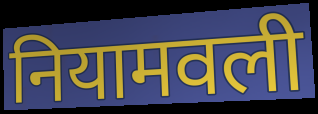
नियामवली